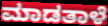
ಮಾಡತಾಳೆ